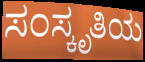
ಸಂಸ್ಕೃತಿಯ